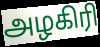
அழகிரி